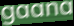
gaana